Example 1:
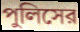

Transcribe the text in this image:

পুলিসের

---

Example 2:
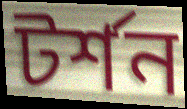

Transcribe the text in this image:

টর্শন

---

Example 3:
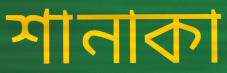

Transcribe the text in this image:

শানাকা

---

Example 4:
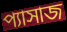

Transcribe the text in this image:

প্যাসাজ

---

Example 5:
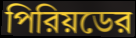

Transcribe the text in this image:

পিরিয়ডের